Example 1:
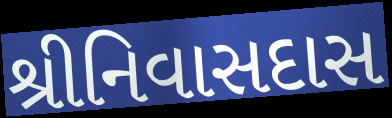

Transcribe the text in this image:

શ્રીનિવાસદાસ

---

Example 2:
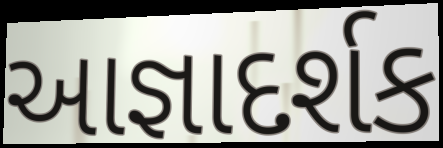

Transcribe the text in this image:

આજ્ઞાદર્શક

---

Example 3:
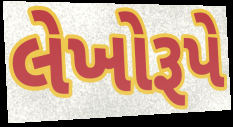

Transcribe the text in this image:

લેખોરૂપે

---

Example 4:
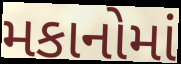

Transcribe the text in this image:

મકાનોમાં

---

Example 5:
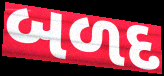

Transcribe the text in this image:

બળદ